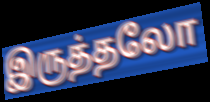
இருத்தலோ